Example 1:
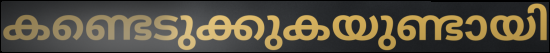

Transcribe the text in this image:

കണ്ടെടുക്കുകയുണ്ടായി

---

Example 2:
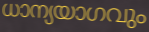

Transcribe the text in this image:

ധാന്യയാഗവും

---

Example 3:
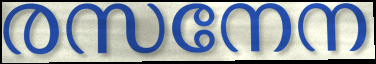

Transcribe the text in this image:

രസനേന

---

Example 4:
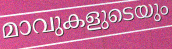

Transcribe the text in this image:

മാവുകളുടെയും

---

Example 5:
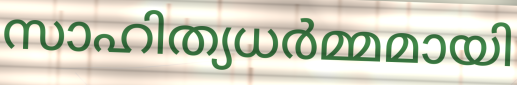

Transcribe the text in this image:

സാഹിത്യധർമ്മമായി